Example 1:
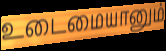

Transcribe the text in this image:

உடைமையானும்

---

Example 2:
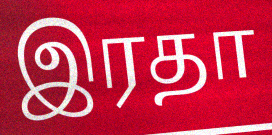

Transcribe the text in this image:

இரதா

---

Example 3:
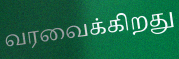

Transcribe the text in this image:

வரவைக்கிறது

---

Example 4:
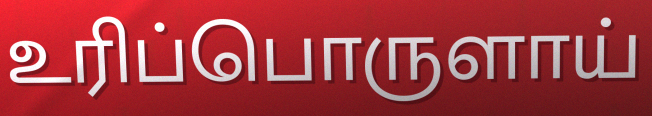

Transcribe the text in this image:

உரிப்பொருளாய்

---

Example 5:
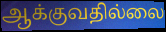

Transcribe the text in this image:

ஆக்குவதில்லை